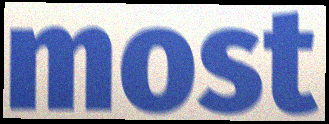
most